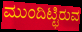
ಮುಂದಿಟ್ಟಿರುವ